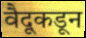
वैदूकडून